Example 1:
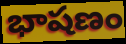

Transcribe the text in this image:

భాషణం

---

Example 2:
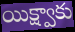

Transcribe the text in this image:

యిక్ష్వాకు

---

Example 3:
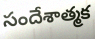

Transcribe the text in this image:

సందేశాత్మక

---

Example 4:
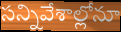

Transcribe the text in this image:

సన్నివేశాల్లోనూ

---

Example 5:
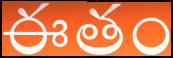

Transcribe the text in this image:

ఈతం